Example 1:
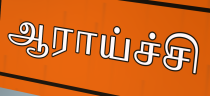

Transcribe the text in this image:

ஆராய்ச்சி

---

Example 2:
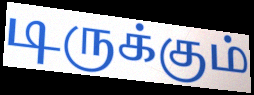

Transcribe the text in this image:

டிருக்கும்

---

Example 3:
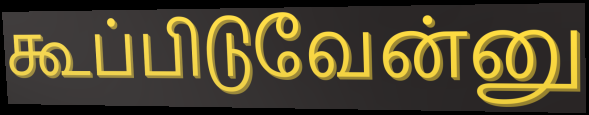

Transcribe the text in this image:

கூப்பிடுவேன்னு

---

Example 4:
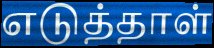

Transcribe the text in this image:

எடுத்தாள்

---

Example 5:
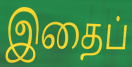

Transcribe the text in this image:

இதைப்